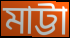
মাট্টা